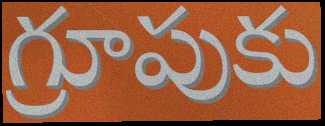
గ్రూపుకు